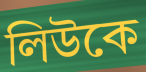
লিউকে